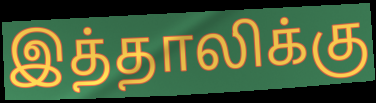
இத்தாலிக்கு